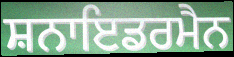
ਸ਼ਨਾਇਡਰਮੈਨ